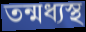
তন্মধ্যস্থ